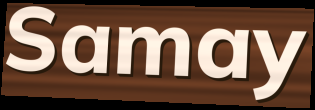
Samay